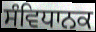
ਸੰਵਿਧਾਨਕ